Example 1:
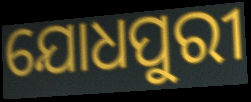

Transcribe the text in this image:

ଯୋଧପୁରୀ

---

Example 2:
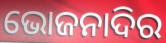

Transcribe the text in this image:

ଭୋଜନାଦିର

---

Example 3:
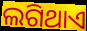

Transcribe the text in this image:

ଲଗିଥାଏ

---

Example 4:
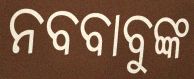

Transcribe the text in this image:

ନବବାବୁଙ୍କ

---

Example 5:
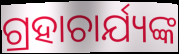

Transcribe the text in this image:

ଗ୍ରହାଚାର୍ଯ୍ୟଙ୍କ